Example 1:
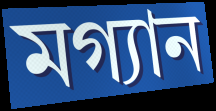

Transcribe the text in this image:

মগ্যান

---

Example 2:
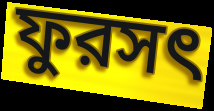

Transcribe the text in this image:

ফুরসৎ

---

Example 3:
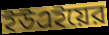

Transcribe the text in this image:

ইউএইয়ের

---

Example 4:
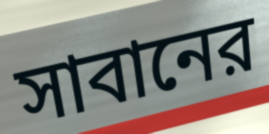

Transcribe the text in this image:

সাবানের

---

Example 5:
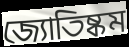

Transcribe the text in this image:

জ্যোতিষ্কম